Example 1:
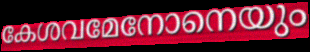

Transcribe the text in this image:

കേശവമേനോനെയും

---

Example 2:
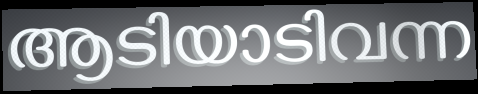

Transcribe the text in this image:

ആടിയാടിവന്ന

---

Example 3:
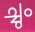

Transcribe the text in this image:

ച്ചും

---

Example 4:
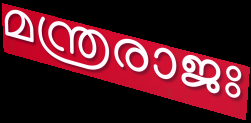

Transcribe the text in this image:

മന്ത്രരാജഃ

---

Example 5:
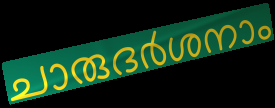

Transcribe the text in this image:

ചാരുദർശനാം